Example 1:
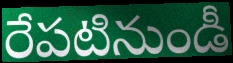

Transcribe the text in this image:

రేపటినుండీ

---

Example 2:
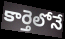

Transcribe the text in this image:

కార్తెలోనే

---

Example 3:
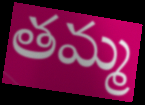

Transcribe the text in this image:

తమ్మ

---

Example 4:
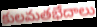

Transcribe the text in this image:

కులమతభేదాలు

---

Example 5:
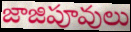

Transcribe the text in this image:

జాజిపూవులు